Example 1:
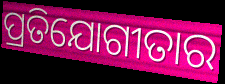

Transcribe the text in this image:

ପ୍ରତିଯୋଗୀତାର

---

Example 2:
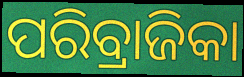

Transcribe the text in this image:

ପରିବ୍ରାଜିକା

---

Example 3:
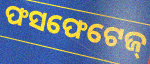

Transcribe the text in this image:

ଫସଫେଟେଜ୍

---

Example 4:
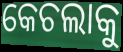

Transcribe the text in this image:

କେଚଲାକୁ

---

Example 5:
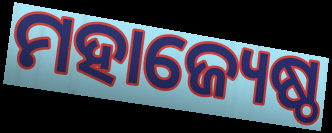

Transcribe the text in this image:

ମହାଜ୍ୟେଷ୍ଠ